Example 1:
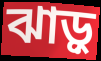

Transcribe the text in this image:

ঝাড়ু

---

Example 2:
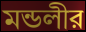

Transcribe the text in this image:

মন্ডলীর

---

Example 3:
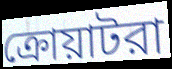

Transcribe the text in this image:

ক্রোয়াটরা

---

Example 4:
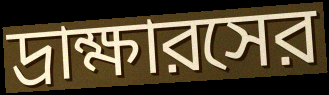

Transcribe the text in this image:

দ্রাক্ষারসের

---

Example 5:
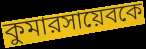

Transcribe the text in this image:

কুমারসায়েবকে